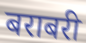
बराबरी